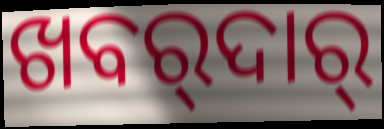
ଖବର୍‍ଦାର୍